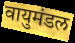
वायुमंडल